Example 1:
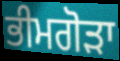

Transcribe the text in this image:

ਭੀਮਗੋੜਾ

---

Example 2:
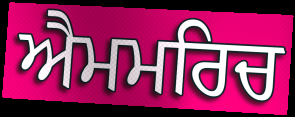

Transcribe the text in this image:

ਐਮਮਰਿਚ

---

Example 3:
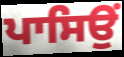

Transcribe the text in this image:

ਪਾਸਿਉਂ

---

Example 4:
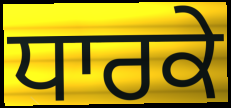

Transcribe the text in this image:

ਧਾਰਕੇ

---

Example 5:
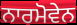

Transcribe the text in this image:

ਨਾਰਮੋਵੇਨ